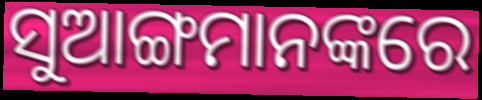
ସୁଆଙ୍ଗମାନଙ୍କରେ